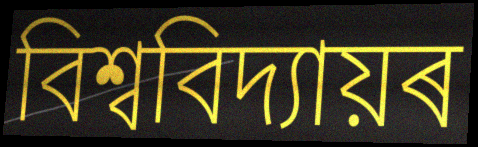
বিশ্ববিদ্যায়ৰ